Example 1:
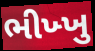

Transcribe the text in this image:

ભીખ્ખુ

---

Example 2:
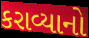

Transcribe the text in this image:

કરાવ્યાનો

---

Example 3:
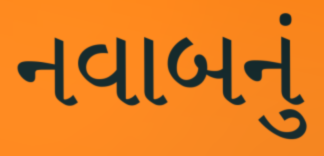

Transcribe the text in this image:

નવાબનું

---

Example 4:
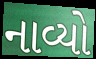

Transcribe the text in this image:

નાવ્યો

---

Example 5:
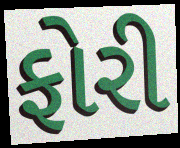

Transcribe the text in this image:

ફોરી